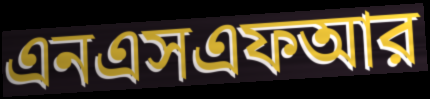
এনএসএফআর